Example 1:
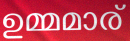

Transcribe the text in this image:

ഉമ്മമാര്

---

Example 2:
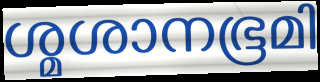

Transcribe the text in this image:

ശ്മശാനഭൂമി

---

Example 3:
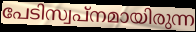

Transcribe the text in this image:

പേടിസ്വപ്നമായിരുന്ന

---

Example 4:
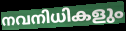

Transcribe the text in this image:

നവനിധികളും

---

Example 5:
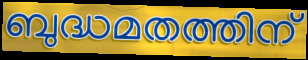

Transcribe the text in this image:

ബുദ്ധമതത്തിന്